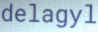
delagyl